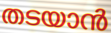
തടയാൻ